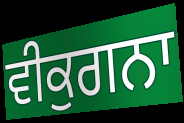
ਵੀਕੁਗਨਾ